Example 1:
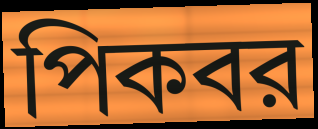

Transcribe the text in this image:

পিকবর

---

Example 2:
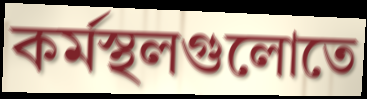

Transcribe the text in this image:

কর্মস্থলগুলোতে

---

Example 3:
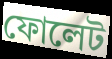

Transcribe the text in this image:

ফোলেট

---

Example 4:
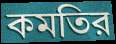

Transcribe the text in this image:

কমতির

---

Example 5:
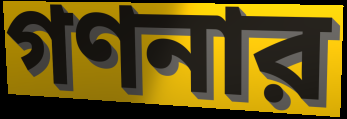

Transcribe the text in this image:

গণনার